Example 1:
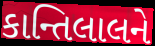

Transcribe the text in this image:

કાન્તિલાલને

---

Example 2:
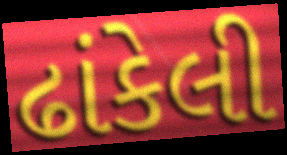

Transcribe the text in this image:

ઢાંકેલી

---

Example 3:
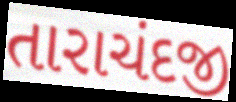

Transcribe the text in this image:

તારાચંદજી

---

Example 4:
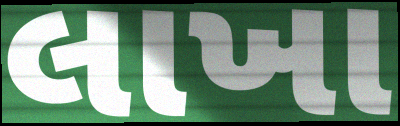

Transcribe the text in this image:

લાખા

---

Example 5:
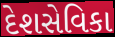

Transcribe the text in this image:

દેશસેવિકા